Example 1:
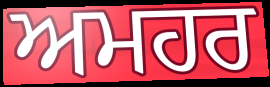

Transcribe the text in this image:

ਅਮਹਰ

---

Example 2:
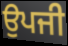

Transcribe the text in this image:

ਉਪਜੀ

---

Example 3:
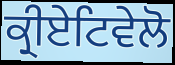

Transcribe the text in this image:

ਕ੍ਰੀਏਟਿਵੇਲੋ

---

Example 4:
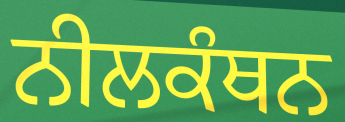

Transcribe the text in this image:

ਨੀਲਕੰਥਨ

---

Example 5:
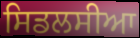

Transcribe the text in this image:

ਸਿਡਲਸੀਆ